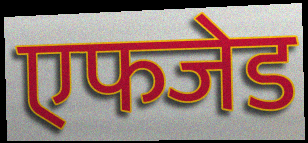
एफजेड